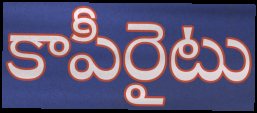
కాపీరైటు